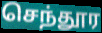
செந்தூர